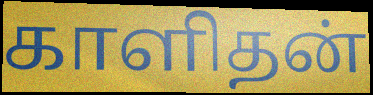
காளிதன்